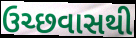
ઉચ્છવાસથી